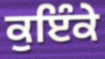
ਕੁਇੰਕੇ